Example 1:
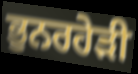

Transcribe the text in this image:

ਭੁਨਰਹੇੜੀ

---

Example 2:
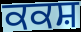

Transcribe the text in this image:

ਕਕਸ਼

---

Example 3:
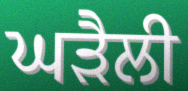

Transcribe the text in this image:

ਘੜੈਲੀ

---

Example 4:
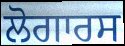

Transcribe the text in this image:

ਲੋਗਾਰਸ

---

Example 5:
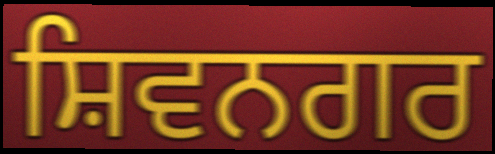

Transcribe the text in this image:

ਸ਼ਿਵਨਗਰ